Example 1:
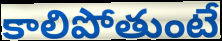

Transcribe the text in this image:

కాలిపోతుంటే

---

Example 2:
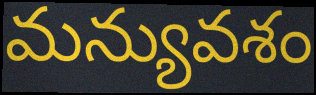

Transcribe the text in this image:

మన్యువశం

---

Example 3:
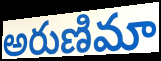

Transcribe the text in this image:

అరుణిమా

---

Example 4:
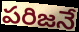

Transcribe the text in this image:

పరిజనే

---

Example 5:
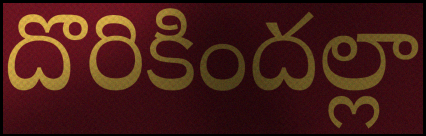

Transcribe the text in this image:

దొరికిందల్లా